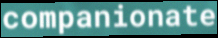
companionate